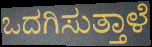
ಒದಗಿಸುತ್ತಾಳೆ